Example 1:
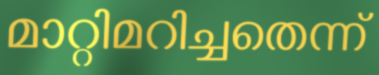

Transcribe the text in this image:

മാറ്റിമറിച്ചതെന്ന്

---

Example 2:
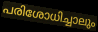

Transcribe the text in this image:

പരിശോധിച്ചാലും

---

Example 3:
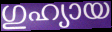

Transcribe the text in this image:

ഗുഹ്യായ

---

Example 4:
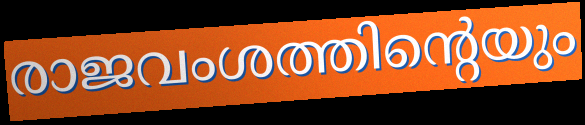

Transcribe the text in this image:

രാജവംശത്തിന്റെയും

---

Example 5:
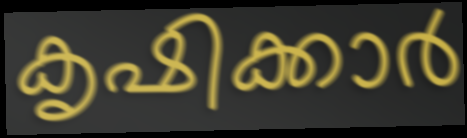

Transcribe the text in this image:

കൃഷിക്കാർ